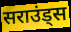
सराउंड्स